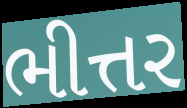
ભીત્તર